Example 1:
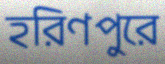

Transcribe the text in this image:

হরিণপুরে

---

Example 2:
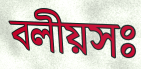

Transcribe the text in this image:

বলীয়সঃ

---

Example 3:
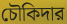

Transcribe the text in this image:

চৌকিদার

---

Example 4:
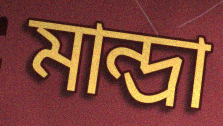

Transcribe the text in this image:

মান্দ্রা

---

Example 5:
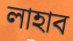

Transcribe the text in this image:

লাহাব